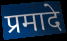
प्रमादे